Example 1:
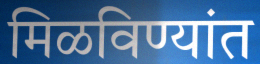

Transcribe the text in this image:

मिळविण्यांत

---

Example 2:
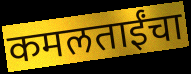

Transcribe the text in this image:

कमलताईंचा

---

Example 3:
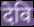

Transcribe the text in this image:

देवि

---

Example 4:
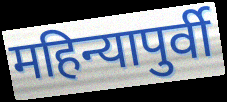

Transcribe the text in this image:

महिन्यापुर्वी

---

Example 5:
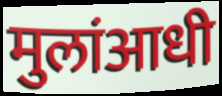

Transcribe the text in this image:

मुलांआधी